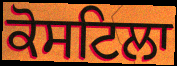
ਕੋਸਟਿਲਾ